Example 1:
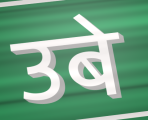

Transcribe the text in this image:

उबे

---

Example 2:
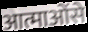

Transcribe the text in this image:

आत्माओंसे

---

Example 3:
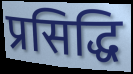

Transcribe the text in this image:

प्रसिद्धि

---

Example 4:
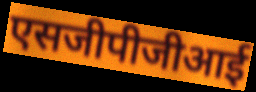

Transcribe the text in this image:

एसजीपीजीआई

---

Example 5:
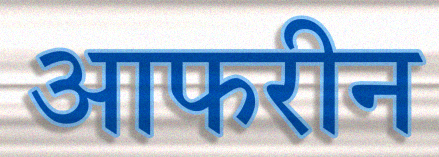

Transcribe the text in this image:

आफरीन